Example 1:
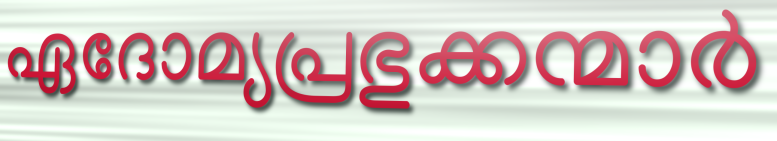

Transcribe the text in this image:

ഏദോമ്യപ്രഭുക്കന്മാർ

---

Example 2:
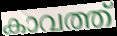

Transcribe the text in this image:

കാവത്ത്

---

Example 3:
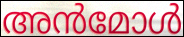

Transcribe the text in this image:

അൻമോൾ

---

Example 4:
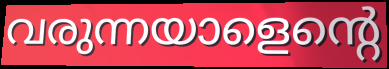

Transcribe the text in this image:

വരുന്നയാളെന്റെ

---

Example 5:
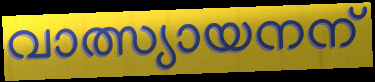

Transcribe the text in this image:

വാത്സ്യായനന്